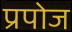
प्रपोज